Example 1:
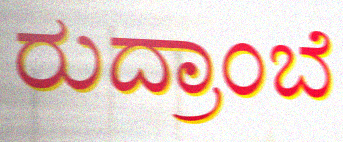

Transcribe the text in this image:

ರುದ್ರಾಂಬೆ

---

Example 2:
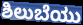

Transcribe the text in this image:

ಶಿಲುಬೆಯು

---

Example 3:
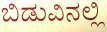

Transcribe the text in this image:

ಬಿಡುವಿನಲ್ಲಿ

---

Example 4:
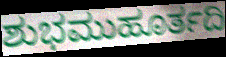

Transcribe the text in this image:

ಶುಭಮುಹೂರ್ತದಿ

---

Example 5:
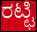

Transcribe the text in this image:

ರಟ್ಟಿ